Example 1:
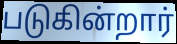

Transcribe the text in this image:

படுகின்றார்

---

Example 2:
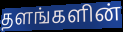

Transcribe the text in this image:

தளங்களின்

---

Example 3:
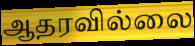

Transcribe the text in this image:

ஆதரவில்லை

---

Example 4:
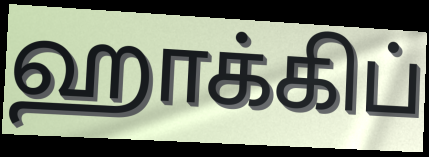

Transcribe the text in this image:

ஹாக்கிப்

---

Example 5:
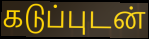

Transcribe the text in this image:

கடுப்புடன்